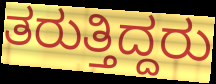
ತರುತ್ತಿದ್ದರು